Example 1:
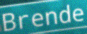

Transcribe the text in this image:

Brende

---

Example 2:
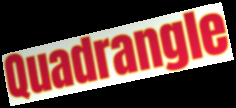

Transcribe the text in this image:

Quadrangle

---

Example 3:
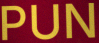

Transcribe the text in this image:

PUN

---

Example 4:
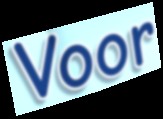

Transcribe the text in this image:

Voor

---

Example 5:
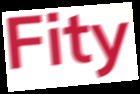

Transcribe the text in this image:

Fity